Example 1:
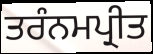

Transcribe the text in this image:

ਤਰੰਨਮਪ੍ਰੀਤ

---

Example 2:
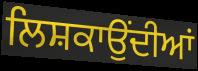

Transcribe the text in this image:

ਲਿਸ਼ਕਾਉਂਦੀਆਂ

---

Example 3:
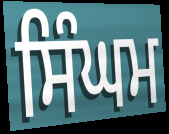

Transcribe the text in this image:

ਸਿੰਘਮ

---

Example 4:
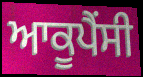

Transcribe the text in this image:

ਆਕੂਪੈਂਸੀ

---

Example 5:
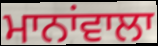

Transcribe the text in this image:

ਮਾਨਾਂਵਾਲਾ